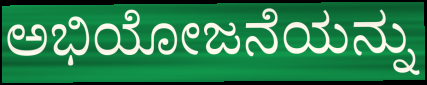
ಅಭಿಯೋಜನೆಯನ್ನು